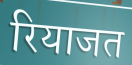
रियाजत